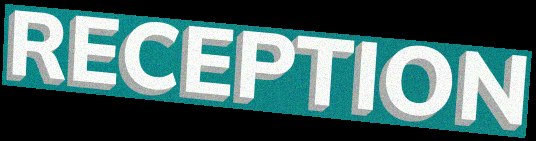
RECEPTION